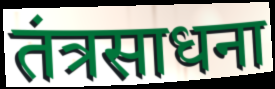
तंत्रसाधना